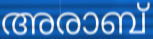
അരാബ്